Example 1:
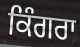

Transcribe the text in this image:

ਕਿੰਗਰਾ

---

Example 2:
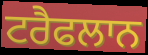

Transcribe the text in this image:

ਟਰੈਫਲਾਨ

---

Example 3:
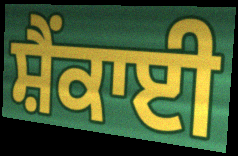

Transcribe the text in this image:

ਸ਼ੈਂਕਾਈ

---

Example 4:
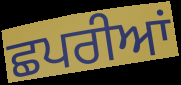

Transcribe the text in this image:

ਛਪਰੀਆਂ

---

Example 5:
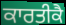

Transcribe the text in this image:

ਕਾਰਤੀਕੈ